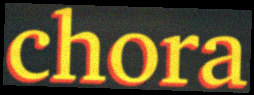
chora